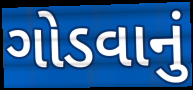
ગોડવાનું